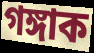
গঙ্গাক